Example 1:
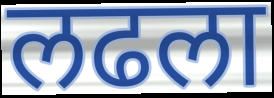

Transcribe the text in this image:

लढला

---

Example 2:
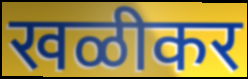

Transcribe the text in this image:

खळीकर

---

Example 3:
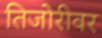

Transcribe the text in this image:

तिजोरीवर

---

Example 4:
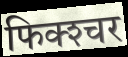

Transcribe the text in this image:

फिक्श्चर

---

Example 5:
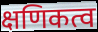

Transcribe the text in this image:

क्षणिकत्व